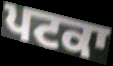
ਪਟਕਾ